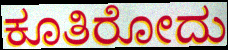
ಕೂತಿರೋದು